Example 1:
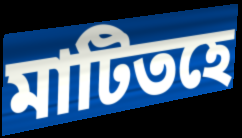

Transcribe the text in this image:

মাটিতহে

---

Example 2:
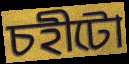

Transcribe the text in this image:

চহীটো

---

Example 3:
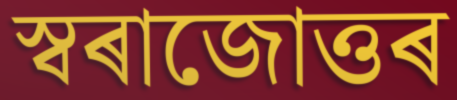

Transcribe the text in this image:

স্বৰাজোত্তৰ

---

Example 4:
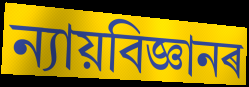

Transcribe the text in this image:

ন্যায়বিজ্ঞানৰ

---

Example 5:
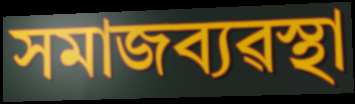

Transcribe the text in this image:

সমাজব্যৱস্থা